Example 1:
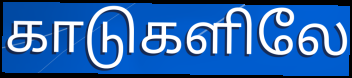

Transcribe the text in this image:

காடுகளிலே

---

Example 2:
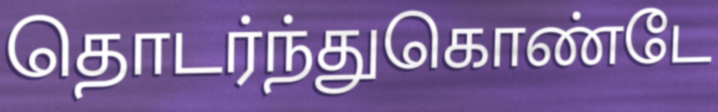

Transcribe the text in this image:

தொடர்ந்துகொண்டே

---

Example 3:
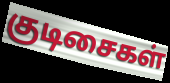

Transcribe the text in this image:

குடிசைகள்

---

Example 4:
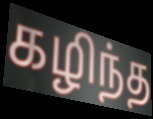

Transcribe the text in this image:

கழிந்த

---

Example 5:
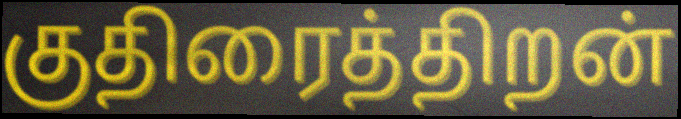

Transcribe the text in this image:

குதிரைத்திறன்